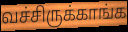
வச்சிருக்காங்க